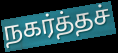
நகர்த்தச்